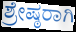
ಶ್ರೇಷ್ಠರಾಗಿ